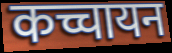
कच्चायन